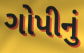
ગોપીનું